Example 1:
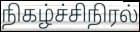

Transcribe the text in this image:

நிகழ்ச்சிநிரல்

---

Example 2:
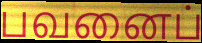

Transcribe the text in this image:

பவனைப்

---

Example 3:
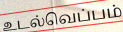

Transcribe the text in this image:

உடல்வெப்பம்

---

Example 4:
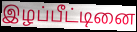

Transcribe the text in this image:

இழப்பீட்டினை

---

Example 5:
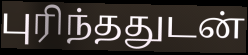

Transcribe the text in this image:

புரிந்ததுடன்